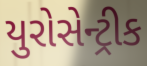
યુરોસેન્ટ્રીક